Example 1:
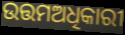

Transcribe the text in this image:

ଉତ୍ତମଅଧିକାରୀ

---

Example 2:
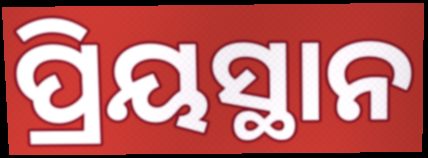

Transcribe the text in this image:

ପ୍ରିୟସ୍ଥାନ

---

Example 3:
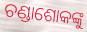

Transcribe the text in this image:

ଚଣ୍ଡାଶୋକଙ୍କୁ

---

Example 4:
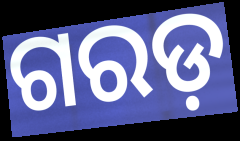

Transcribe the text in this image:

ଗରଡ଼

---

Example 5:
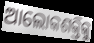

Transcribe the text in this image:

ଆଲୋକଶକ୍ତିକୁ